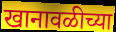
खानावळीच्या